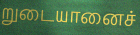
றுடையானைச்